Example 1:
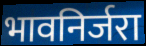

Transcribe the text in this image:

भावनिर्जरा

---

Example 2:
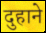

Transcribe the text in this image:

दुहाने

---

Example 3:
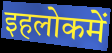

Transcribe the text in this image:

इहलोकमें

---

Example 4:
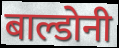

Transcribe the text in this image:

बाल्डोनी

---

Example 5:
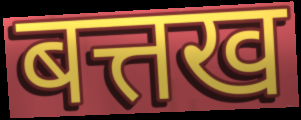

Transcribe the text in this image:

बत्तख